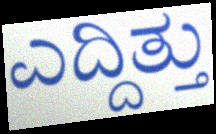
ಎದ್ದಿತ್ತು